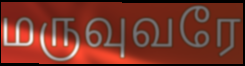
மருவுவரே